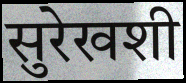
सुरेखशी